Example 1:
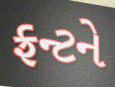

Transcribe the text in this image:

ફ્રન્ટને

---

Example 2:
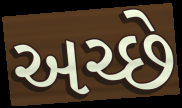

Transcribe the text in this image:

અચ્છે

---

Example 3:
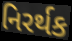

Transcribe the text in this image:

નિરર્થક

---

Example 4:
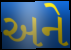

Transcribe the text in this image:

અને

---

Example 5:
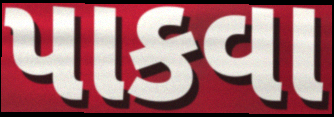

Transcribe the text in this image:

પાકવા